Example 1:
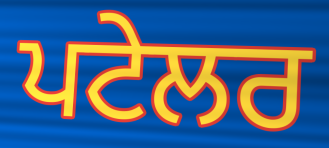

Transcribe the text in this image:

ਪਟੇਲਰ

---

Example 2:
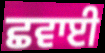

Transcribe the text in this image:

ਛਵਾਈ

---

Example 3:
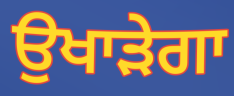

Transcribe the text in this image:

ਉਖਾੜੇਗਾ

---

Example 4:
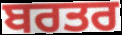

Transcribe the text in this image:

ਬਰਤਰ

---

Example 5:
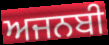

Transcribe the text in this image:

ਅਜਨਬੀ